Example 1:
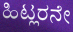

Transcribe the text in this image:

ಹಿಟ್ಲರನೇ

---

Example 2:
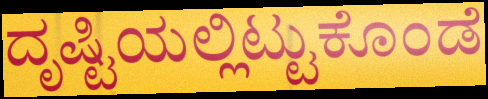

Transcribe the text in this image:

ದೃಷ್ಟಿಯಲ್ಲಿಟ್ಟುಕೊಂಡೆ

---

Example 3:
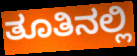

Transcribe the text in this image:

ತೂತಿನಲ್ಲಿ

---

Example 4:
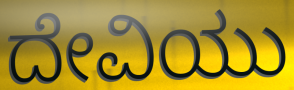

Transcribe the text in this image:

ದೇವಿಯು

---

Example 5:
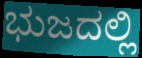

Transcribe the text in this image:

ಭುಜದಲ್ಲಿ